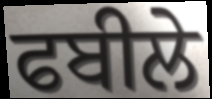
ਫਬੀਲੇ